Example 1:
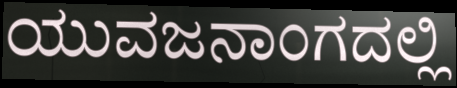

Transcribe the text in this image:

ಯುವಜನಾಂಗದಲ್ಲಿ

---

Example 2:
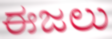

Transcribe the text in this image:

ಈಜಲು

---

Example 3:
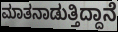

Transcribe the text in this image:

ಮಾತನಾಡುತ್ತಿದ್ದಾನೆ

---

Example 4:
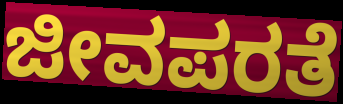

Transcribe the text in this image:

ಜೀವಪರತೆ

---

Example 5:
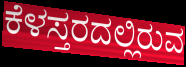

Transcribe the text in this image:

ಕೆಳಸ್ತರದಲ್ಲಿರುವ